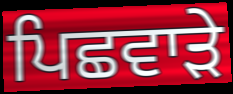
ਪਿਛਵਾੜੇ